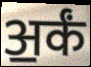
अ॒र्कं